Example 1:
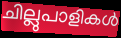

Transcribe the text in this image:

ചില്ലുപാളികൾ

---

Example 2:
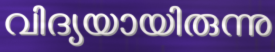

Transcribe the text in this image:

വിദ്യയായിരുന്നു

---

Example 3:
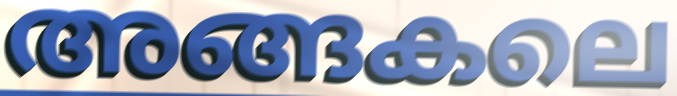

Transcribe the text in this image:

അങ്ങകലെ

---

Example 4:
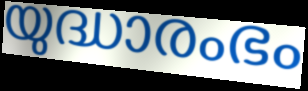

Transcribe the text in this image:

യുദ്ധാരംഭം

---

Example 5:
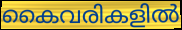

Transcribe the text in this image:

കൈവരികളിൽ